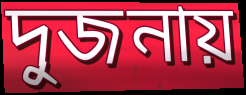
দুজনায়